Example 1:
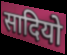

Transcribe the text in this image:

सादियो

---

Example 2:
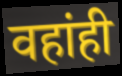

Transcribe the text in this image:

वहांही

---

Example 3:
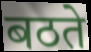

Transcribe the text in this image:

बठते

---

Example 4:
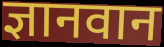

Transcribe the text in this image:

ज्ञानवान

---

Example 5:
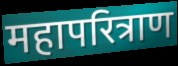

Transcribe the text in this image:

महापरित्राण